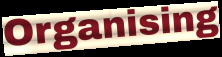
Organising